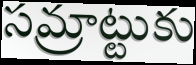
సమ్రాట్టుకు